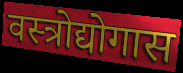
वस्त्रोद्योगास